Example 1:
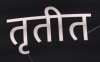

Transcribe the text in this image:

तृतीत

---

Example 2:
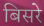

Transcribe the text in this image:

बिसरे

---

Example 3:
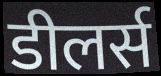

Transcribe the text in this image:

डीलर्स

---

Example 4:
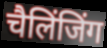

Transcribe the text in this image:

चैलिंजिंग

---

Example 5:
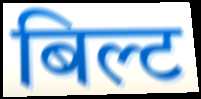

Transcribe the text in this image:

बिल्‍ट